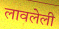
लावलेली